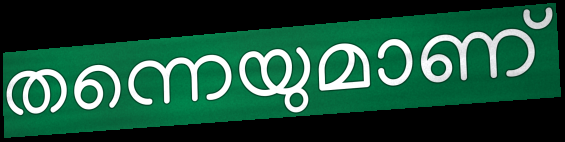
തന്നെയുമാണ്